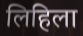
लिहिला